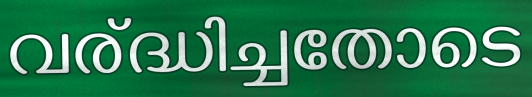
വര്ദ്ധിച്ചതോടെ